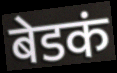
बेडकं